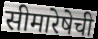
सीमारेषेची